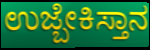
ಉಜ್ಬೇಕಿಸ್ತಾನ